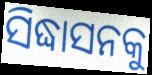
ସିଦ୍ଧାସନକୁ